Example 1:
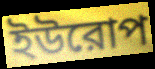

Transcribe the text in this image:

ইউরোপ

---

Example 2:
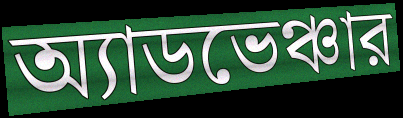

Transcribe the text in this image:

অ্যাডভেঞ্চার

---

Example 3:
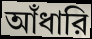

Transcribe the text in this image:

আঁধারি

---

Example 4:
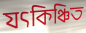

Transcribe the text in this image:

যৎকিঞ্চিত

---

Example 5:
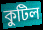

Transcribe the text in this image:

কুটিল